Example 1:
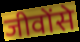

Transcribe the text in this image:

जीवोंसे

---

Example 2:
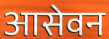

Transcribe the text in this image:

आसेवन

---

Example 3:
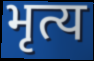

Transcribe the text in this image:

भृत्य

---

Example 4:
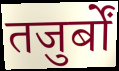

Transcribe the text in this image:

तजुर्बों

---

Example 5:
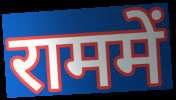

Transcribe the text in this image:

राममें